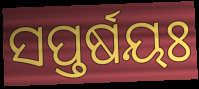
ସପ୍ତର୍ଷୟଃ